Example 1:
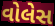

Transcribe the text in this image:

વોલેસ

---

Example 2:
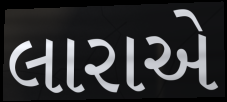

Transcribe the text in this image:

લારાએ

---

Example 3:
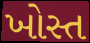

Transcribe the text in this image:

ખોસ્ત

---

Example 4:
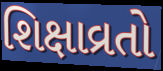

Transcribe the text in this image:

શિક્ષાવ્રતો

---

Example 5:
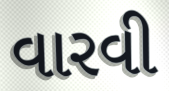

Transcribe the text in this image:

વારવી